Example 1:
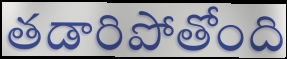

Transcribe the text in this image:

తడారిపోతోంది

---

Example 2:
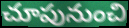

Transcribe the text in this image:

చూపునుంచి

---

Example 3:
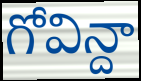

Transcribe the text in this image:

గోవిన్దా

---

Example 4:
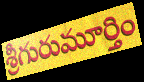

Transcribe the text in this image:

శ్రీగురుమూర్తిం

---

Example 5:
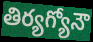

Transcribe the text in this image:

తిర్యగ్యోనౌ